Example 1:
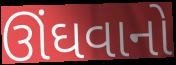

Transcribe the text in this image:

ઊંઘવાનો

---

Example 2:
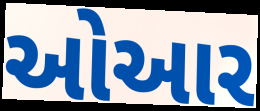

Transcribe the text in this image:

ઓઆર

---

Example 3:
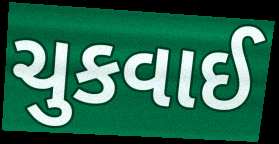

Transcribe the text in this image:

ચુકવાઈ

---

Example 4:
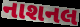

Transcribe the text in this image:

નાશનલ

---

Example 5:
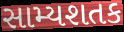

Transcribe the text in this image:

સામ્યશતક